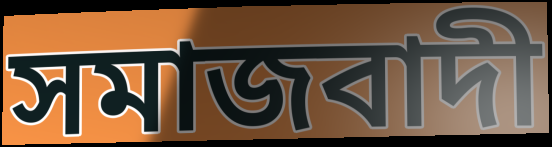
সমাজবাদী